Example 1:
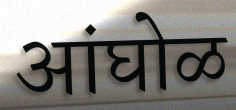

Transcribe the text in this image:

आंघोळ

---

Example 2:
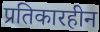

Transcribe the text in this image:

प्रतिकारहीन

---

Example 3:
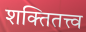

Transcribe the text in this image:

शक्तितत्त्व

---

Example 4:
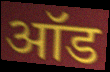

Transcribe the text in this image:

ऑड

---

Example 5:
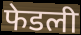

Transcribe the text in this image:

फेडली